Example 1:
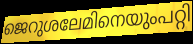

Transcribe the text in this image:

ജെറുശലേമിനെയുംപറ്റി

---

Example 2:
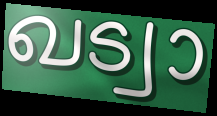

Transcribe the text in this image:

ഖട്വാ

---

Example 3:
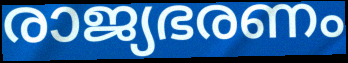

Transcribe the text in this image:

രാജ്യഭരണം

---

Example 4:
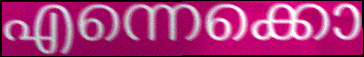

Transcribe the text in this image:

എന്നെക്കൊ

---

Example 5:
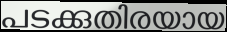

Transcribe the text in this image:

പടക്കുതിരയായ